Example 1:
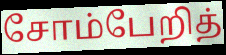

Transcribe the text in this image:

சோம்பேறித்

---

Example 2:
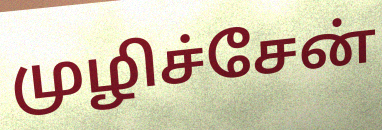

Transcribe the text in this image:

முழிச்சேன்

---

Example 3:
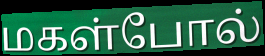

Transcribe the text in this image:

மகள்போல்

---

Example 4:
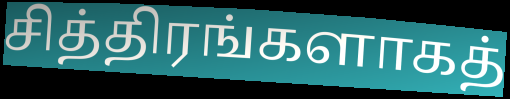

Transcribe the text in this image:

சித்திரங்களாகத்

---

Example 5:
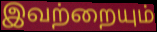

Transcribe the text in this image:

இவற்றையும்